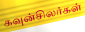
கவுன்சிலர்கள்